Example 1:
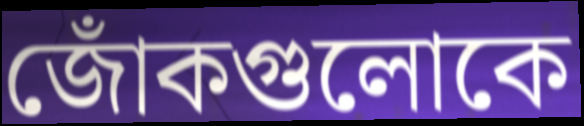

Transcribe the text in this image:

জোঁকগুলোকে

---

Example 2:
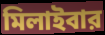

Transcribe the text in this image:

মিলাইবার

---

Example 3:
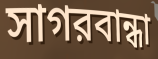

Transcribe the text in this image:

সাগরবান্ধা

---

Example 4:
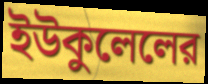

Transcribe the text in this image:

ইউকুলেলের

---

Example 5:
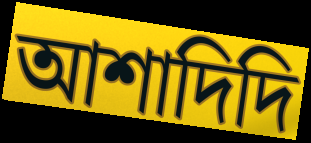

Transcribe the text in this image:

আশাদিদি